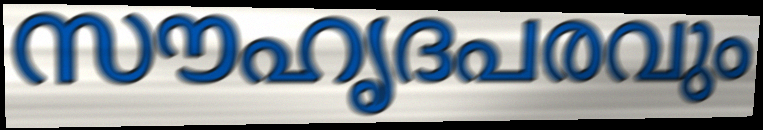
സൗഹൃദപരവും